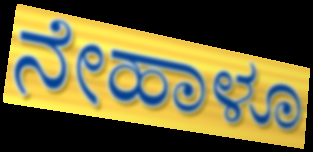
ನೇಹಾಳೂ